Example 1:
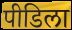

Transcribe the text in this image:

पीडिला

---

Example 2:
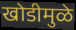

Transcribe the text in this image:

खोडीमुळे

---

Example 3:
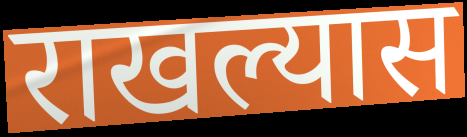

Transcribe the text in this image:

राखल्यास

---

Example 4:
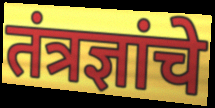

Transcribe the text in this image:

तंत्रज्ञांचे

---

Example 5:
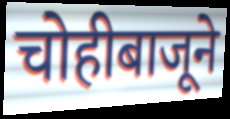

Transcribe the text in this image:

चोहीबाजूने